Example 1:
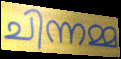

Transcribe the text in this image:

ചിന്നമ്മ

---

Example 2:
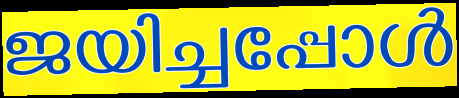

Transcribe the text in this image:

ജയിച്ചപ്പോൾ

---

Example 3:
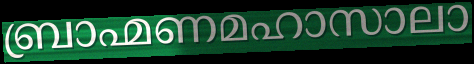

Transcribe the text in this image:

ബ്രാഹ്മണമഹാസാലാ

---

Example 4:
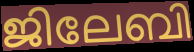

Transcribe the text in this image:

ജിലേബി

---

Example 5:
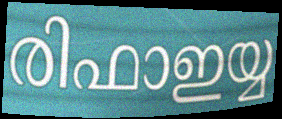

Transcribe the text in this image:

രിഫാഇയ്യ